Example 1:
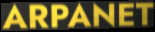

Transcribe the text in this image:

ARPANET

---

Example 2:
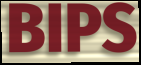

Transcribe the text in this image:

BIPS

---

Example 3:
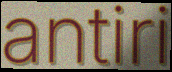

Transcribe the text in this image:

antiri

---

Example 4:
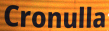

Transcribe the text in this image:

Cronulla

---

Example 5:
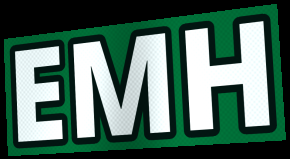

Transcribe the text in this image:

EMH